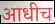
आधीच